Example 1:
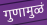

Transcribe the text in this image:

गुणामुळं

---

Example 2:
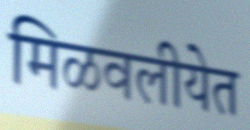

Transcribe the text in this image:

मिळवलीयेत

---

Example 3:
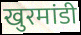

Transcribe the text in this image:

खुरमांडी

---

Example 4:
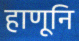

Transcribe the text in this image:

हाणूनि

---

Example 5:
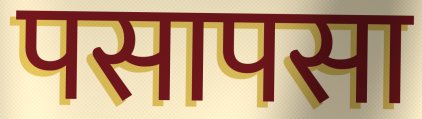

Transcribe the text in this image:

पसापसा